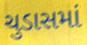
ચુડાસમાં